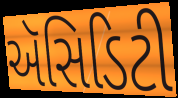
ઍસિડિટી